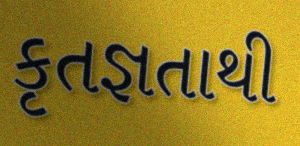
કૃતજ્ઞતાથી